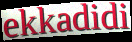
ekkadidi